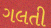
ગલતી